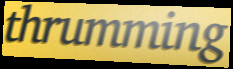
thrumming